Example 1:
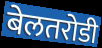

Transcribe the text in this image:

बेलतरोडी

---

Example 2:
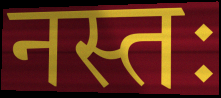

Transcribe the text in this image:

नस्तः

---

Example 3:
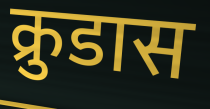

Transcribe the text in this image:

क्रुडास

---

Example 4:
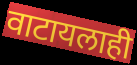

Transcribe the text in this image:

वाटायलाही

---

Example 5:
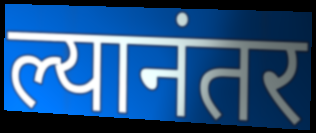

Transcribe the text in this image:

ल्यानंतर